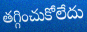
తగ్గించుకోలేదు